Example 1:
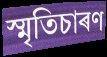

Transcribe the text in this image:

স্মৃতিচাৰণ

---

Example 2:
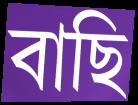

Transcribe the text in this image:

বাছি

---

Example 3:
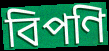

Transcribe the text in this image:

বিপণি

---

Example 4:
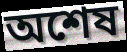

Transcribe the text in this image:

অশেষ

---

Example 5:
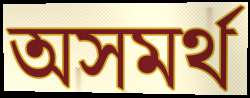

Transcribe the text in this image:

অসমৰ্থ